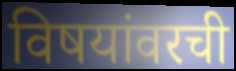
विषयांवरची